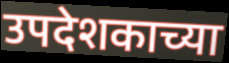
उपदेशकाच्या